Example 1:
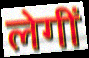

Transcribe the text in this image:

लेगीं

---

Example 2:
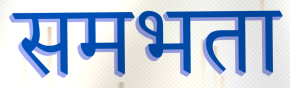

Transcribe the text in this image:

समभता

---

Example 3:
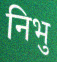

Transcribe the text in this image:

निभु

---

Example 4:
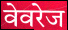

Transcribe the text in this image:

वेवरेज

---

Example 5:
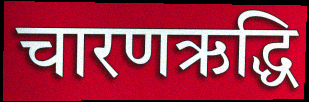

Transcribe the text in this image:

चारणऋद्धि